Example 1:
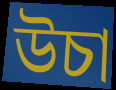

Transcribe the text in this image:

উচা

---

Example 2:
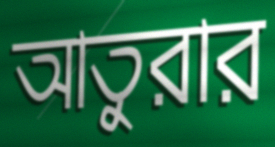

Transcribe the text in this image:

আতুরার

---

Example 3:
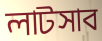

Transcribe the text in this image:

লাটসাব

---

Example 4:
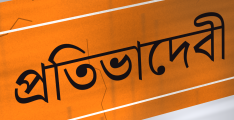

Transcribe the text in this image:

প্রতিভাদেবী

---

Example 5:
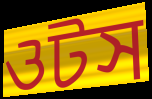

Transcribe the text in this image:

ওটস